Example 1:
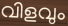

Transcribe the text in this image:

വിളവും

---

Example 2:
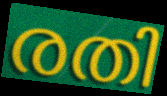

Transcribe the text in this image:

രതി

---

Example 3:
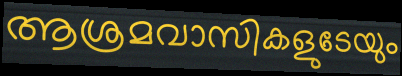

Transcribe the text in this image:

ആശ്രമവാസികളുടേയും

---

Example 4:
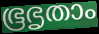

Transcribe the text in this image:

ഭൂഭൃതാം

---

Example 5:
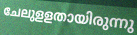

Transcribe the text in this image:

ചേലുളളതായിരുന്നു